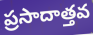
ప్రసాదాత్తవ